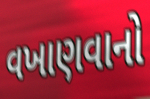
વખાણવાનો